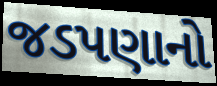
જડપણાનો